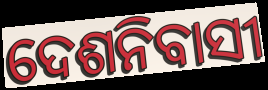
ଦେଶନିବାସୀ